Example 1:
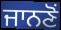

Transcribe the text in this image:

ਜਾਨਣੋਂ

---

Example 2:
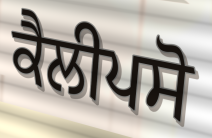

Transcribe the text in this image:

ਕੈਲੀਪਸੋ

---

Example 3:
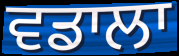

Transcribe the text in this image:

ਵਡਾਲਾ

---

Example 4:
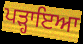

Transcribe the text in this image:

ਪੜ੍ਹਾਇਆ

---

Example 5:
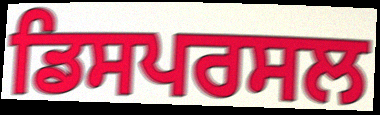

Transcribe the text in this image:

ਡਿਸਪਰਸਲ